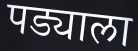
पड्याला